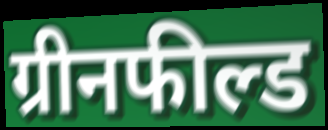
ग्रीनफील्ड